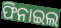
ଫିନାଇଲ